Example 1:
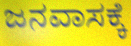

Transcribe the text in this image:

ಜನವಾಸಕ್ಕೆ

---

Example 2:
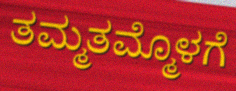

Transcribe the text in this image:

ತಮ್ಮತಮ್ಮೊಳಗೆ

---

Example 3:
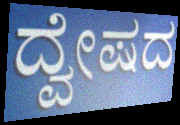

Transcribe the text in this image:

ದ್ವೇಷದ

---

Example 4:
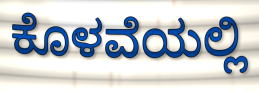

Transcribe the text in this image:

ಕೊಳವೆಯಲ್ಲಿ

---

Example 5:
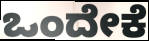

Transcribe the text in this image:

ಒಂದೇಕೆ